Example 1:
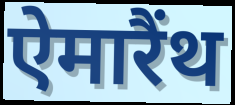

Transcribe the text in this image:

ऐमारैंथ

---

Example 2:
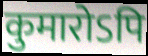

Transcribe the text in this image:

कुमारोऽपि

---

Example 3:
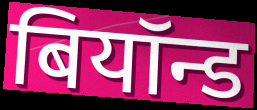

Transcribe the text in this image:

बियॉन्ड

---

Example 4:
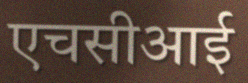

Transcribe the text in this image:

एचसीआई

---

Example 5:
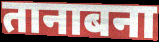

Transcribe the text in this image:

तानाबना